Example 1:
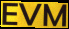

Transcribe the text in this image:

EVM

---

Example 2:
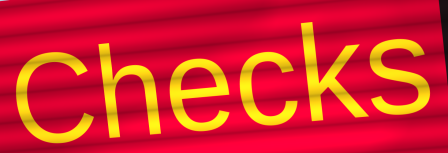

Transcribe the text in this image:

Checks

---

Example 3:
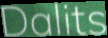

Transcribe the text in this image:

Dalits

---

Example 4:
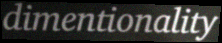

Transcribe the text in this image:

dimentionality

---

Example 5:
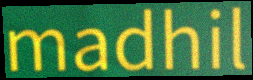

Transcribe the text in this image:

madhil